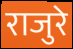
राजुरे